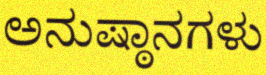
ಅನುಷ್ಠಾನಗಳು